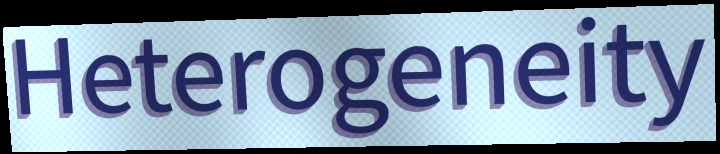
Heterogeneity